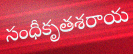
సంధీకృతశరాయ